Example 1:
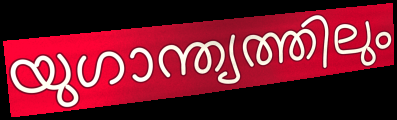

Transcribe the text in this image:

യുഗാന്ത്യത്തിലും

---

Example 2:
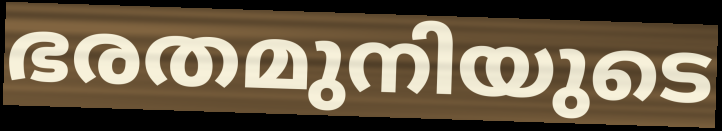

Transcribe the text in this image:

ഭരതമുനിയുടെ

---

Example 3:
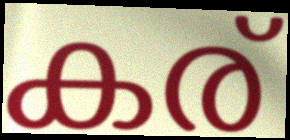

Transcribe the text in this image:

കര്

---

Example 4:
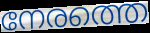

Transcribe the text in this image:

നേരത്തെ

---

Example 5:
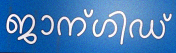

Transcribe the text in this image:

ജാന്ഗിഡ്